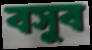
বসুৰ